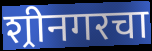
श्रीनगरचा